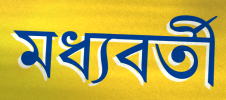
মধ্যবৰ্তী